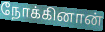
நோக்கினான்